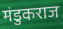
मंडुकराज